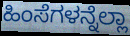
ಹಿಂಸೆಗಳನ್ನೆಲ್ಲಾ